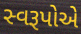
સ્વરૂપોએ